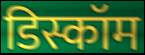
डिस्कॉम